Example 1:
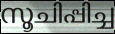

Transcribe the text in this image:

സൂചിപ്പിച്ച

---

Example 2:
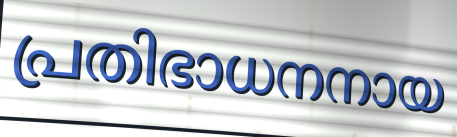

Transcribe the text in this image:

പ്രതിഭാധനനായ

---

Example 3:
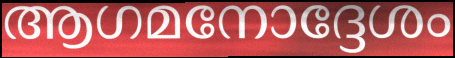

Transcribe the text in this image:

ആഗമനോദ്ദേശം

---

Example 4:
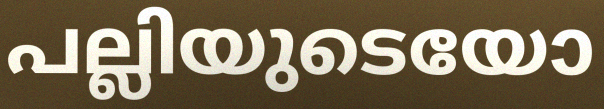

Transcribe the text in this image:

പല്ലിയുടെയോ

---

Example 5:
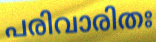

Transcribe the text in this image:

പരിവാരിതഃ